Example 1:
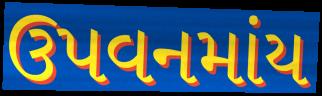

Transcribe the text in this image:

ઉપવનમાંય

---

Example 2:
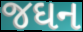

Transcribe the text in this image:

જઘન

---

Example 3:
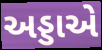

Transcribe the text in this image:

અડ્ડાએ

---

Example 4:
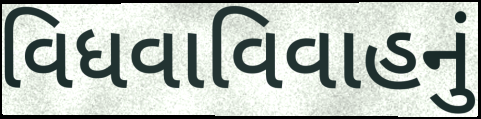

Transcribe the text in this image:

વિધવાવિવાહનું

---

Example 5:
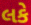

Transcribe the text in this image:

લકે